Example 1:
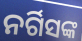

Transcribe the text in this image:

ନର୍ଗିସଙ୍କ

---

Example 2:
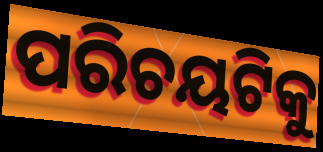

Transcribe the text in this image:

ପରିଚୟଟିକୁ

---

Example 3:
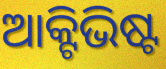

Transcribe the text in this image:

ଆକ୍ଟିଭିଷ୍ଟ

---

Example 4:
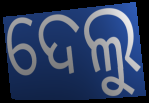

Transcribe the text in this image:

ଦେଲୁ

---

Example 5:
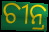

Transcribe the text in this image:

ଚୀନ୍ର